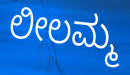
ಲೀಲಮ್ಮ